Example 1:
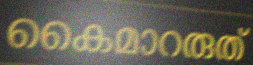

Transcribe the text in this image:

കൈമാറരുത്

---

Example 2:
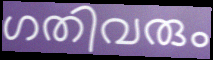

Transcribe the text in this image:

ഗതിവരും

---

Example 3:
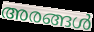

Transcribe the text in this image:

അരങ്ങൾ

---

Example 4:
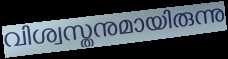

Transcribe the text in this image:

വിശ്വസ്തനുമായിരുന്നു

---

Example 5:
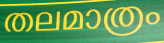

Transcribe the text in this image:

തലമാത്രം